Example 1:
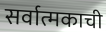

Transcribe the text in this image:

सर्वात्मकाची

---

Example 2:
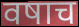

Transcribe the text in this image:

वषाच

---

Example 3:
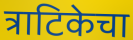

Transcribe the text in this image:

त्राटिकेचा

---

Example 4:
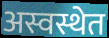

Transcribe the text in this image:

अस्वस्थेत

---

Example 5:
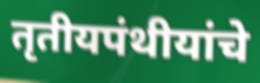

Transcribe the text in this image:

तृतीयपंथीयांचे